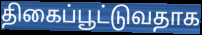
திகைப்பூட்டுவதாக